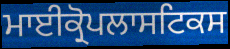
ਮਾਈਕ੍ਰੋਪਲਾਸਟਿਕਸ